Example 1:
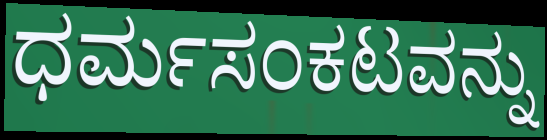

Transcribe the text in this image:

ಧರ್ಮಸಂಕಟವನ್ನು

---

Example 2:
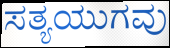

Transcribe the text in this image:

ಸತ್ಯಯುಗವು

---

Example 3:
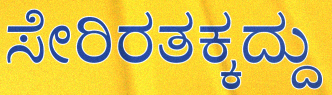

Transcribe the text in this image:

ಸೇರಿರತಕ್ಕದ್ದು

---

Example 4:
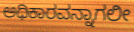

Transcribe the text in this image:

ಅಧಿಕಾರವನ್ನಾಗಲೀ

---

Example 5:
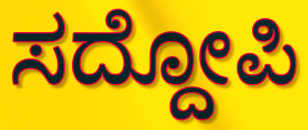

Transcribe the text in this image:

ಸದ್ದೋಪಿ